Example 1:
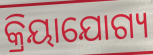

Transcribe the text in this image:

କ୍ରିୟାଯୋଗ୍ୟ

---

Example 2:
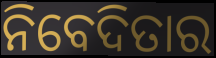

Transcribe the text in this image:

ନିବେଦିତାର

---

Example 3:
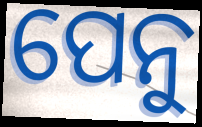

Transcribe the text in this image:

ପେନୁ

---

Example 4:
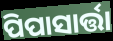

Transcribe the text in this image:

ପିପାସାର୍ତ୍ତା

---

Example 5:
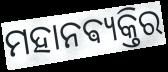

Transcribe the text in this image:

ମହାନଵ୍ୟକ୍ତିର